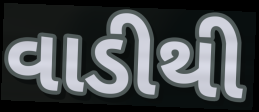
વાડીથી